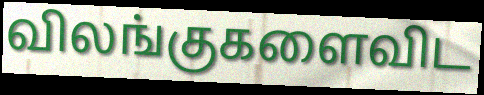
விலங்குகளைவிட